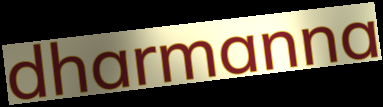
dharmanna